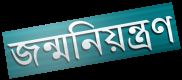
জন্মনিয়ন্ত্রণ